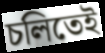
চলিতেই